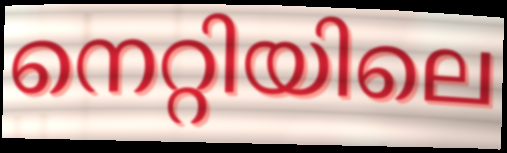
നെറ്റിയിലെ